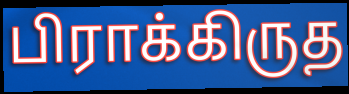
பிராக்கிருத